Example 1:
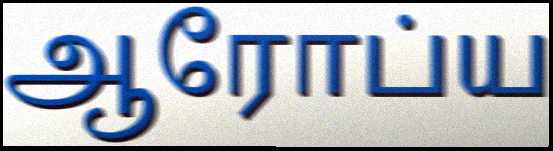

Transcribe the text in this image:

ஆரோப்ய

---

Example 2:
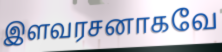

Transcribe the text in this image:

இளவரசனாகவே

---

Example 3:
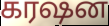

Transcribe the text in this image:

கரஷன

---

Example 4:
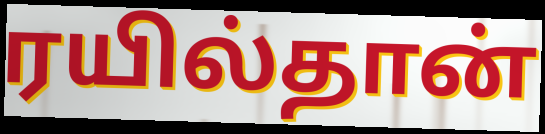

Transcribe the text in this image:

ரயில்தான்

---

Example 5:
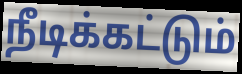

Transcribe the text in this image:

நீடிக்கட்டும்